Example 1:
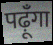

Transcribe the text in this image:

पढ़ूँगा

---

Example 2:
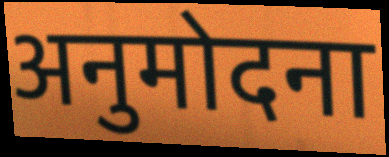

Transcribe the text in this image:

अनुमोदना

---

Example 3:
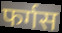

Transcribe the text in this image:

फर्गस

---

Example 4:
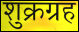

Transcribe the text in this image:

शुक्रग्रह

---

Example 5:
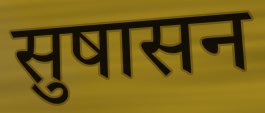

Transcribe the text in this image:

सुषासन